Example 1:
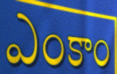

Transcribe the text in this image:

ఎంకాం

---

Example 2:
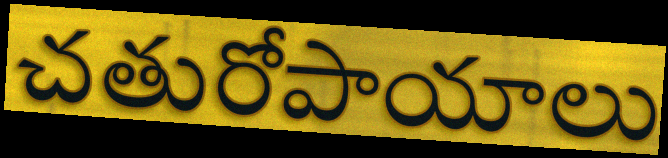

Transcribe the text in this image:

చతురోపాయాలు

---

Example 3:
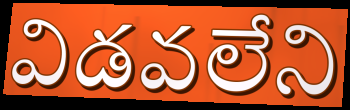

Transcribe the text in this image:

విడవలేని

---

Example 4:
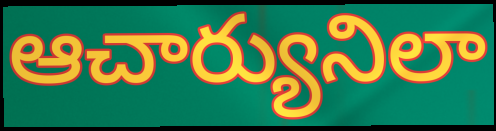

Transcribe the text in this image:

ఆచార్యునిలా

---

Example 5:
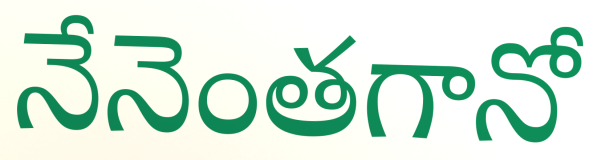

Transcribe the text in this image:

నేనెంతగానో